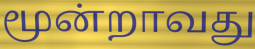
மூன்றாவது